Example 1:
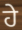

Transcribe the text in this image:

ਹੇ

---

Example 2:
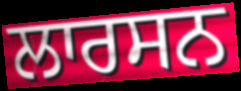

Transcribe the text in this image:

ਲਾਰਸਨ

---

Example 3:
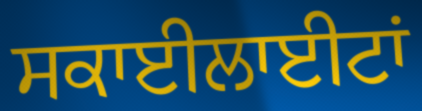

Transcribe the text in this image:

ਸਕਾਈਲਾਈਟਾਂ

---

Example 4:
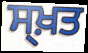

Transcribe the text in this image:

ਸ੍ਖ਼ਤ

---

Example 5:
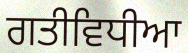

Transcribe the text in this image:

ਗਤੀਵਿਧੀਆ